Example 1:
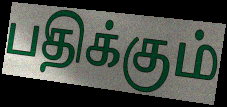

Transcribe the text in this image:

பதிக்கும்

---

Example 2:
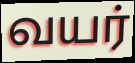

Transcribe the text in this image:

வயர்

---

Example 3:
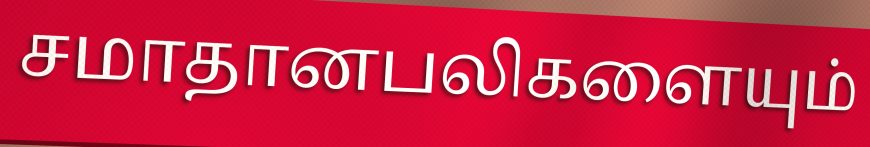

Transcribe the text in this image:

சமாதானபலிகளையும்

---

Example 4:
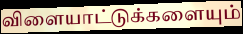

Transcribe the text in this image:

விளையாட்டுக்களையும்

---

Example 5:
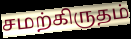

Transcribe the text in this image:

சமற்கிருதம்